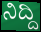
ನಿದ್ದಿ